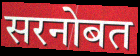
सरनोबत